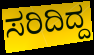
ಸರಿದಿದ್ದ